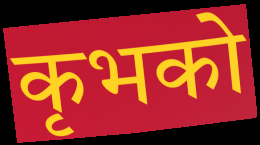
कृभको